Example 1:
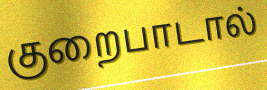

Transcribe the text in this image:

குறைபாடால்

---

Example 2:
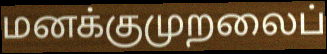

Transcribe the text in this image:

மனக்குமுறலைப்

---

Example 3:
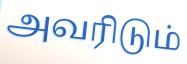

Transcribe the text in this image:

அவரிடும்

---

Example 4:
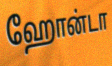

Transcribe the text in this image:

ஹோன்டா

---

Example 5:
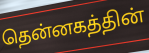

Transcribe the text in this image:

தென்னகத்தின்